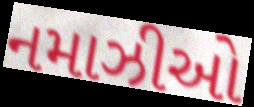
નમાઝીઓ